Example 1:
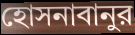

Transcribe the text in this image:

হোসনাবানুর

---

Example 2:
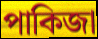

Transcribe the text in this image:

পাকিজা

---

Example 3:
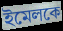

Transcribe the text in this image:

ইমেলকে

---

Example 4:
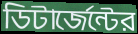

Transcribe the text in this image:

ডিটার্জেন্টের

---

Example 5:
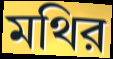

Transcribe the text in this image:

মথির